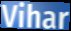
Vihar